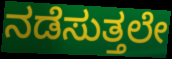
ನಡೆಸುತ್ತಲೇ